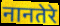
नानतेरे